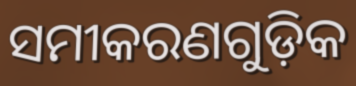
ସମୀକରଣଗୁଡ଼ିକ